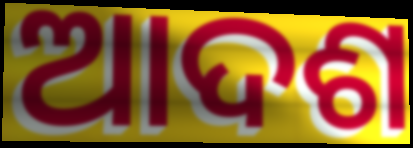
ଆଦଶ